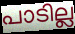
പാടില്ല